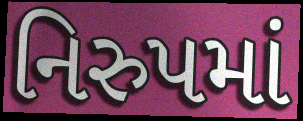
નિરુપમાં